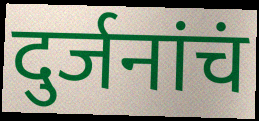
दुर्जनांचं